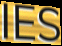
IES